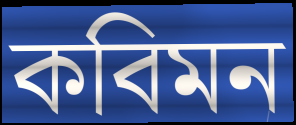
কবিমন